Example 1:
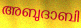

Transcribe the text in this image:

അബുദാബി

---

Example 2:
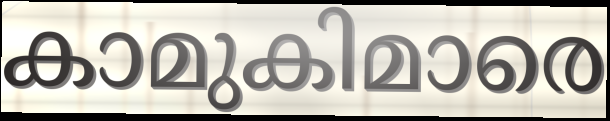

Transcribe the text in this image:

കാമുകിമാരെ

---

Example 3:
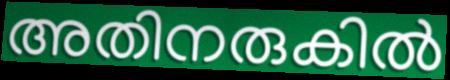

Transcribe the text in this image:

അതിനരുകിൽ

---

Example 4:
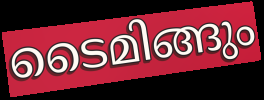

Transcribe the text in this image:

ടൈമിങ്ങും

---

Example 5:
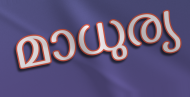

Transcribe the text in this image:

മാധുര്യ